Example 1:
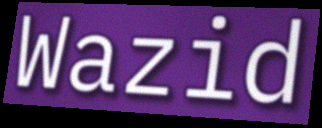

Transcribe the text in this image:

Wazid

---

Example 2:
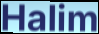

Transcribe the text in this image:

Halim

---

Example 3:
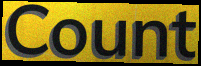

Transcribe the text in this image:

Count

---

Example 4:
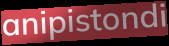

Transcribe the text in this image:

anipistondi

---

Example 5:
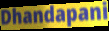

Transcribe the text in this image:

Dhandapani